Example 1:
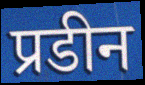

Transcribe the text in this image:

प्रडीन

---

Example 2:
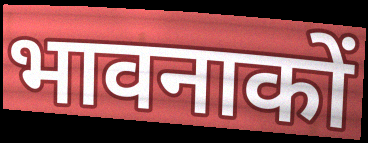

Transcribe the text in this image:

भावनाकों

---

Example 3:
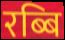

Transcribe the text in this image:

रब्बि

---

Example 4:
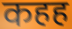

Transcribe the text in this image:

कहह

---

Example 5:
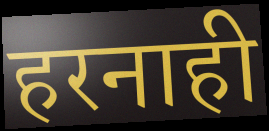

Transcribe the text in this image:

हरनाही